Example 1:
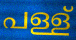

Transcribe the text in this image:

പള്ള്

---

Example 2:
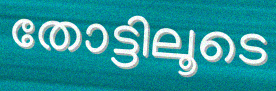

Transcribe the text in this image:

തോട്ടിലൂടെ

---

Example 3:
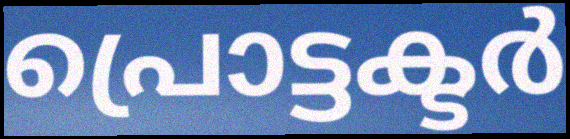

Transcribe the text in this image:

പ്രൊട്ടക്ടർ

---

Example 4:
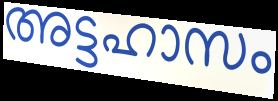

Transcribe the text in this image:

അട്ടഹാസം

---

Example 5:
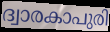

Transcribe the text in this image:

ദ്വാരകാപുരി